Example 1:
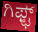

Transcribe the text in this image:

ಗಿಫ್ಟ್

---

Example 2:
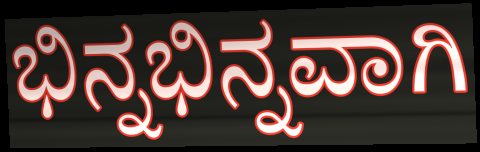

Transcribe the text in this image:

ಭಿನ್ನಭಿನ್ನವಾಗಿ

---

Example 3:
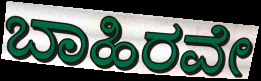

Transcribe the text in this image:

ಬಾಹಿರವೇ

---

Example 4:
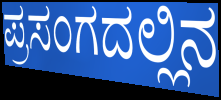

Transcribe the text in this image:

ಪ್ರಸಂಗದಲ್ಲಿನ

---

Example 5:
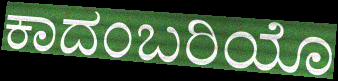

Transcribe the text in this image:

ಕಾದಂಬರಿಯೊ